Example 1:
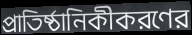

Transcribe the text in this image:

প্রাতিষ্ঠানিকীকরণের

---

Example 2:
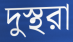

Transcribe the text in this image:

দুস্থরা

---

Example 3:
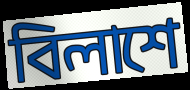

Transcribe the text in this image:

বিলাশে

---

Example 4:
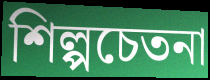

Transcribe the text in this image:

শিল্পচেতনা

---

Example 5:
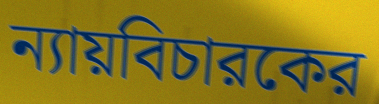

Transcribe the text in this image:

ন্যায়বিচারকের